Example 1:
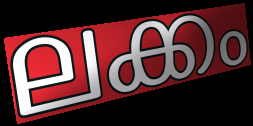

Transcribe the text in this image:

ലക്കം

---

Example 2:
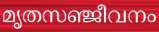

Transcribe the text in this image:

മൃതസഞ്ജീവനം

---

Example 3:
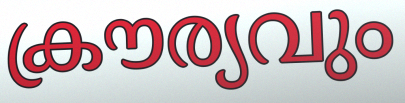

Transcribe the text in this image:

ക്രൗര്യവും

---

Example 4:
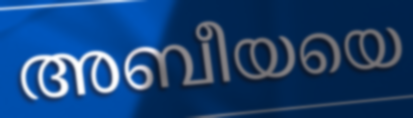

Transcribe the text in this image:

അബീയയെ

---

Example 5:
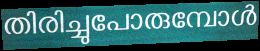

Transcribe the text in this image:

തിരിച്ചുപോരുമ്പോൾ